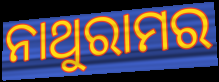
ନାଥୁରାମର